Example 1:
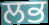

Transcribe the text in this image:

ਲਭ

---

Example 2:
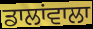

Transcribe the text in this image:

ਡਾਲਾਂਵਾਲਾ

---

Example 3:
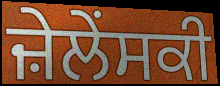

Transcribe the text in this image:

ਜ਼ੇਲੇਂਸਕੀ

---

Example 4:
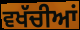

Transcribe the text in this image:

ਵਖੱਚੀਆਂ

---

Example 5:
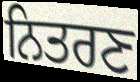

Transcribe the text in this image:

ਨਿਤਰਣ